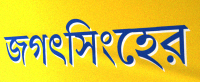
জগৎসিংহের